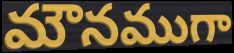
మౌనముగా